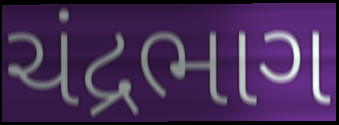
ચંદ્રભાગ